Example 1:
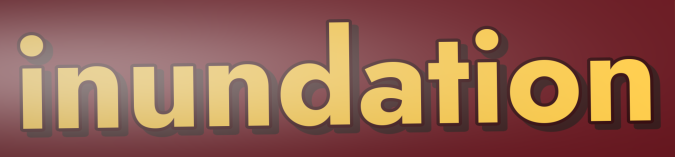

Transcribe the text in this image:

inundation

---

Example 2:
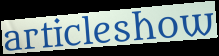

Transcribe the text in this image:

articleshow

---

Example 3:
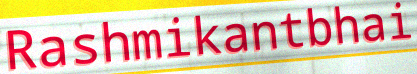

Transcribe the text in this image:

Rashmikantbhai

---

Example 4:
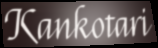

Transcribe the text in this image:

Kankotari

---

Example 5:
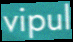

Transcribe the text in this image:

vipul